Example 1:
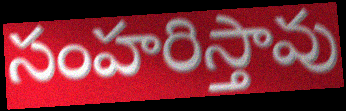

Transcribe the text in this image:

సంహరిస్తావు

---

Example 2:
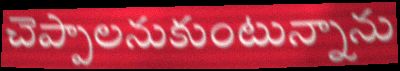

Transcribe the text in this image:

చెప్పాలనుకుంటున్నాను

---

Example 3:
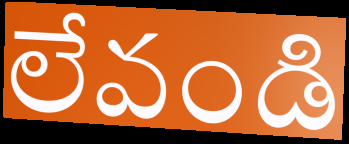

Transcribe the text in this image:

లేవండి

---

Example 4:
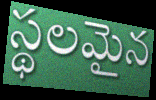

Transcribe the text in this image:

స్థలమైన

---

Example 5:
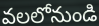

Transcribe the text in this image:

వలలోనుండి